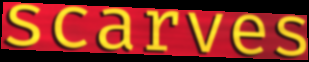
scarves